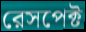
রেসপেক্ট